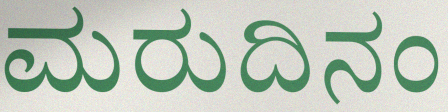
ಮರುದಿನಂ